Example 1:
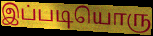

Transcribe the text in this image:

இப்படியொரு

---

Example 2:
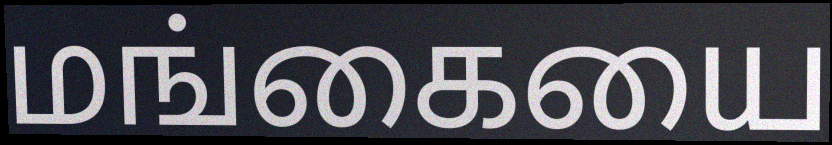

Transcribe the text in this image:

மங்கையை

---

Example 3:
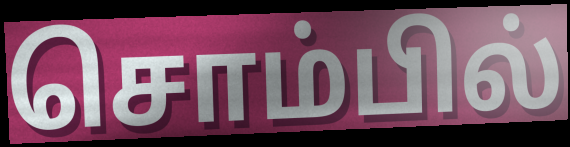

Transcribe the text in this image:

சொம்பில்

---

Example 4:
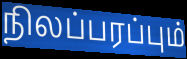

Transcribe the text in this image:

நிலப்பரப்பும்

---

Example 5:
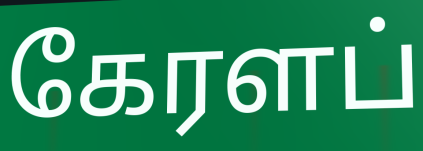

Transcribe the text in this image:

கேரளப்